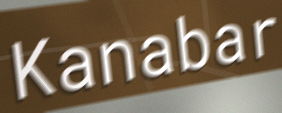
Kanabar